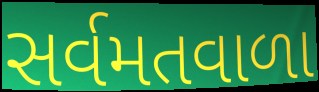
સર્વમતવાળા